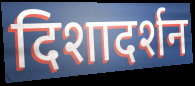
दिशादर्शन